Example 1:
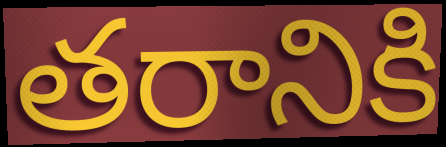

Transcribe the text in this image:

తరానికి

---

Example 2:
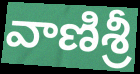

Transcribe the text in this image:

వాణిశ్రీ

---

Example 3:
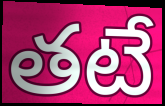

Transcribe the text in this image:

తటే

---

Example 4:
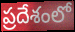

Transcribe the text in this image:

ప్రదేశంలో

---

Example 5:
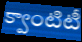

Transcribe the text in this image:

క్వాంటిటీ